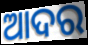
ଆଦର